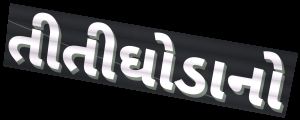
તીતીઘોડાનો